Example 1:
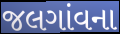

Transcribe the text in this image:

જલગાંવના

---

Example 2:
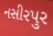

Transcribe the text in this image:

નસીરપુર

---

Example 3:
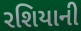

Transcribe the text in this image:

રશિયાની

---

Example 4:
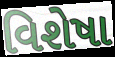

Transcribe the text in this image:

વિશેષા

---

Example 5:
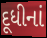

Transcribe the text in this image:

દૂધીનાં